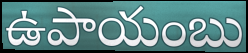
ఉపాయంబు